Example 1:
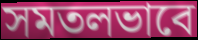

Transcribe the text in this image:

সমতলভাবে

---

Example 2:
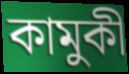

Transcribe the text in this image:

কামুকী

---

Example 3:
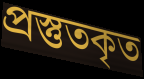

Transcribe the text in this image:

প্রস্তুতকৃত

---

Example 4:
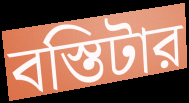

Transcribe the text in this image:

বস্তিটার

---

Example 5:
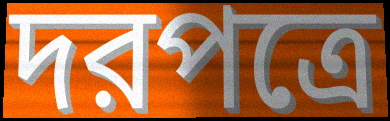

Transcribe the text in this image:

দরপত্রে